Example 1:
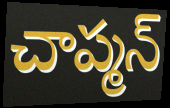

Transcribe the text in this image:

చాప్మన్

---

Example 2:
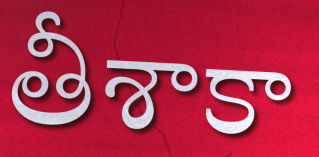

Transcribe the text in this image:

తీశాకా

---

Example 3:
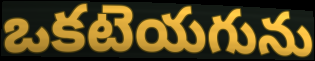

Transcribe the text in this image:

ఒకటెయగును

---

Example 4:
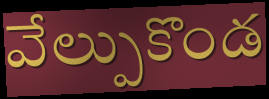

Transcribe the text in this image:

వేల్పుకొండ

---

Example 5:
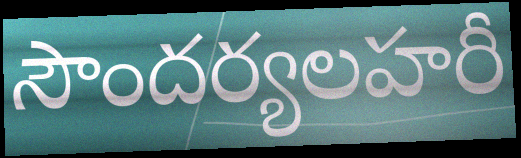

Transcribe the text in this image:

సౌందర్యలహరీ